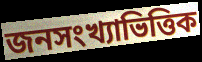
জনসংখ্যাভিত্তিক